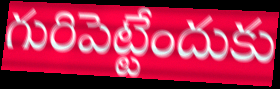
గురిపెట్టేందుకు